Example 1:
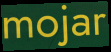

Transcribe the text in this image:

mojar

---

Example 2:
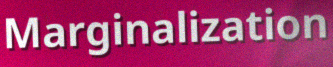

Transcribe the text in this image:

Marginalization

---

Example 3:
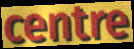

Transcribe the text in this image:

centre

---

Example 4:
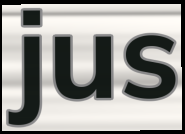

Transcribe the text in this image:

jus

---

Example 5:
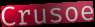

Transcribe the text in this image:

Crusoe